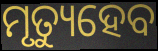
ମୃତ୍ୟୁହେବ